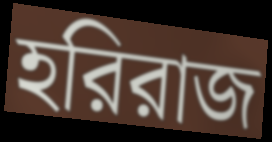
হরিরাজ